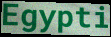
Egypti